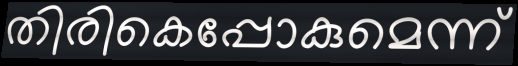
തിരികെപ്പോകുമെന്ന്